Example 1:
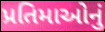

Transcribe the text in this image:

પ્રતિમાઓનું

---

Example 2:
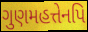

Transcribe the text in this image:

ગુણમહત્તેનપિ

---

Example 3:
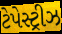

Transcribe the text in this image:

ટેપેસ્ટ્રીઝ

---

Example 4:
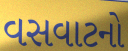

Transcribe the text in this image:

વસવાટનો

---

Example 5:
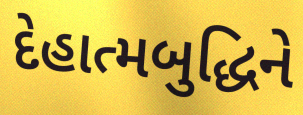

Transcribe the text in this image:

દેહાત્મબુદ્ધિને